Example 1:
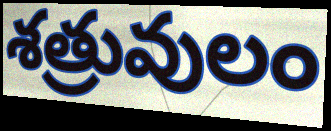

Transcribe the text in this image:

శత్రువులం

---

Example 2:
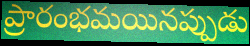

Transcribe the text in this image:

ప్రారంభమయినప్పుడు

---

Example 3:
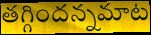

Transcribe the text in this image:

తగ్గిందన్నమాట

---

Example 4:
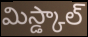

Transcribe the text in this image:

మిస్డ్కాల్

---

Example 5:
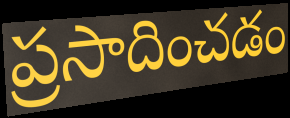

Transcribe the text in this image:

ప్రసాదించడం